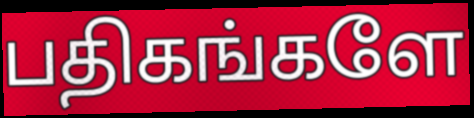
பதிகங்களே